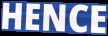
HENCE